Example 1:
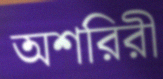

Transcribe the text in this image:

অশরিরী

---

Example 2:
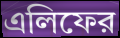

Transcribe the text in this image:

এলিফের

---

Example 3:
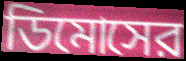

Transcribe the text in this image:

ডিমোসের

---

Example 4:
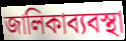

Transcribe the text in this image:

জালিকাব্যবস্থা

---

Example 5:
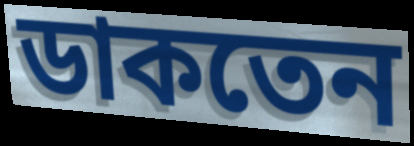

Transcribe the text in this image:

ডাকতেন